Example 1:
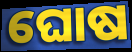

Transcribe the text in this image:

ଘୋଷ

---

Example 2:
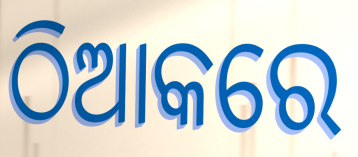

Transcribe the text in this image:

ଠିଆକରେ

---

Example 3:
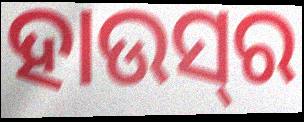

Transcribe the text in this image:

ହାଉସ୍‌ର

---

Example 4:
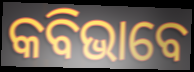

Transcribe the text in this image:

କବିଭାବେ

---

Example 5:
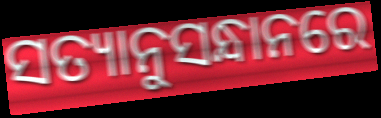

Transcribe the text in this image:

ସତ୍ୟାନୁସନ୍ଧାନରେ